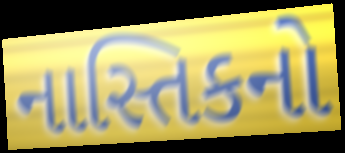
નાસ્તિકનો